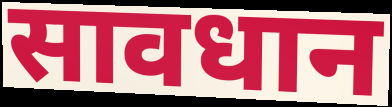
सावधान